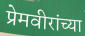
प्रेमवीरांच्या